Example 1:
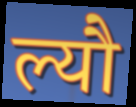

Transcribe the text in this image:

ल्यौ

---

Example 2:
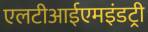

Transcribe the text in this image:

एलटीआईएमइंडट्री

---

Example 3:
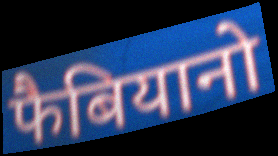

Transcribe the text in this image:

फैबियानो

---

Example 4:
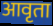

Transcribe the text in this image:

आवृता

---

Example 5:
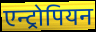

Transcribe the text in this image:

एन्ट्रोपियन